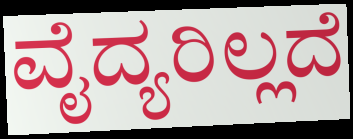
ವೈದ್ಯರಿಲ್ಲದೆ